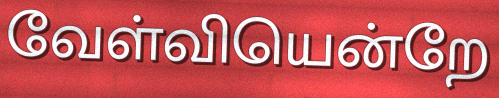
வேள்வியென்றே